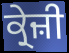
ਕ੍ਰੇਜ਼ੀ